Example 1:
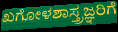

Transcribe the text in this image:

ಖಗೋಳಶಾಸ್ತ್ರಜ್ಞರಿಗೆ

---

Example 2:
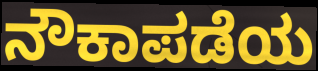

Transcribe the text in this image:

ನೌಕಾಪಡೆಯ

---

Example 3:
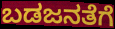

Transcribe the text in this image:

ಬಡಜನತೆಗೆ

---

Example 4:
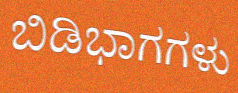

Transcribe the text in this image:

ಬಿಡಿಭಾಗಗಳು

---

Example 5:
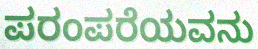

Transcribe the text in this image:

ಪರಂಪರೆಯವನು